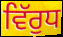
ਵਿੱਰੁਧ